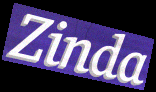
Zinda